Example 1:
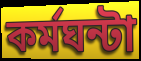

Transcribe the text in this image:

কর্মঘন্টা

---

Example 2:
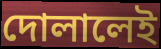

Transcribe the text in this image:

দোলালেই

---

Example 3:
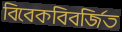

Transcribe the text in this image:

বিবেকবিবর্জিত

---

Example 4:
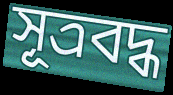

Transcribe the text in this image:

সূত্রবদ্ধ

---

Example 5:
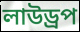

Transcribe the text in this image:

লাউড্রপ